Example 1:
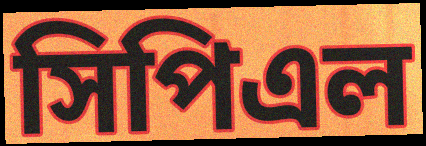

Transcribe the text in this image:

সিপিএল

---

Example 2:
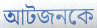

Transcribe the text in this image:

আটজনকে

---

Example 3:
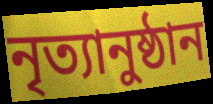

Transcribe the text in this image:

নৃত্যানুষ্ঠান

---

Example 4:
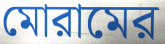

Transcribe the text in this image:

মোরামের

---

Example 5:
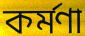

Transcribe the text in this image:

কর্মণা